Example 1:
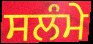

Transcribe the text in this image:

ਸਲੰਮੇ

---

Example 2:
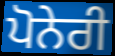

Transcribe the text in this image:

ਪੋਨੇਰੀ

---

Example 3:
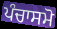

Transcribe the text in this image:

ਪੰਚਾਸਮੋ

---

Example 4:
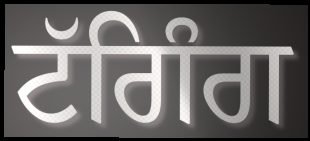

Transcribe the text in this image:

ਟੱਗਿੰਗ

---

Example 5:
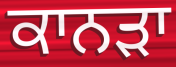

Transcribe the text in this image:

ਕਾਨੜਾ